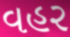
વહર